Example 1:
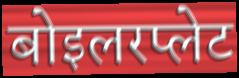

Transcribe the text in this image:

बोइलरप्लेट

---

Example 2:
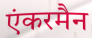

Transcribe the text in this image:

एंकरमैन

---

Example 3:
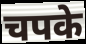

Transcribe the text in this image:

चपके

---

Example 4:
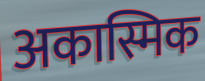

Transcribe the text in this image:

अकास्मिक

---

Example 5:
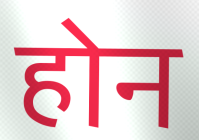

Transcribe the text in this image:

होन